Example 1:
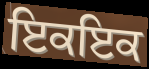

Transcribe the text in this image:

ਇਕਇਕ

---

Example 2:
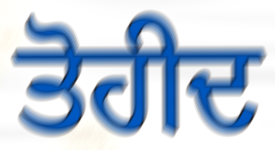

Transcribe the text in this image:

ਤੋਹੀਦ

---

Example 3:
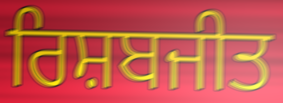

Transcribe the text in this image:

ਰਿਸ਼ਬਜੀਤ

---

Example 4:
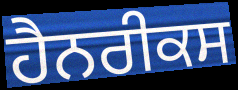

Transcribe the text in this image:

ਹੈਨਰੀਕਸ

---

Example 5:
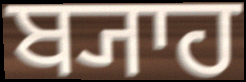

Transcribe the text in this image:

ਬ੍ਯਾਹ